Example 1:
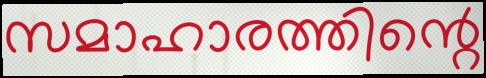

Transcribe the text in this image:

സമാഹാരത്തിന്റെ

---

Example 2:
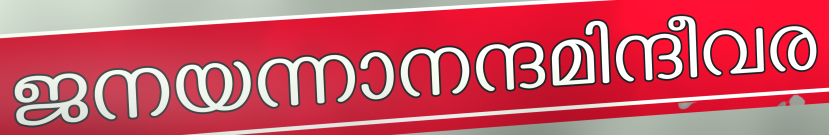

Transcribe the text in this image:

ജനയന്നാനന്ദമിന്ദീവര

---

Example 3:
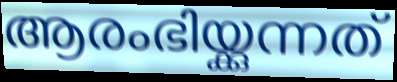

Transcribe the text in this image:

ആരംഭിയ്ക്കുന്നത്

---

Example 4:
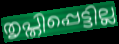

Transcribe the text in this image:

തൃപ്തിപ്പെട്ടില്ല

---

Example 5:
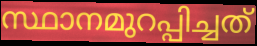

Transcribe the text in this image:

സ്ഥാനമുറപ്പിച്ചത്